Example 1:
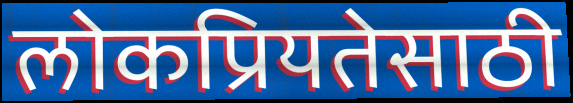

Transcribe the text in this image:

लोकप्रियतेसाठी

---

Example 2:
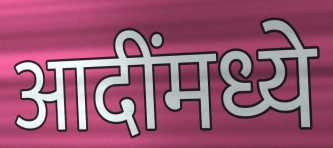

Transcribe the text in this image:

आदींमध्ये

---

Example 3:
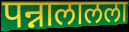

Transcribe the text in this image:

पन्नालालला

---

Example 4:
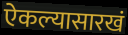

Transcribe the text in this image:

ऐकल्यासारखं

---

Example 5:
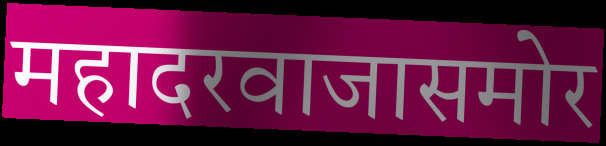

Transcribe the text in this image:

महादरवाजासमोर